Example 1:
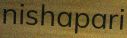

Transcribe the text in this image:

nishapari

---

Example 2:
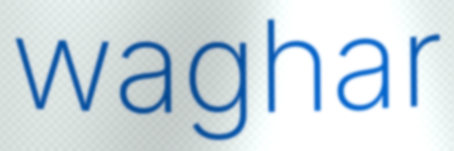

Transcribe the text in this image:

waghar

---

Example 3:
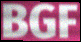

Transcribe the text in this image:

BGF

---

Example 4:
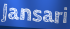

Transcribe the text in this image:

Jansari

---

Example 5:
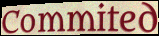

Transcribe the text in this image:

Commited